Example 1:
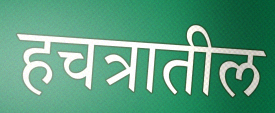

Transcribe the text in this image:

हचत्रातील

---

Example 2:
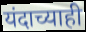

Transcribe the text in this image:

यंदाच्याही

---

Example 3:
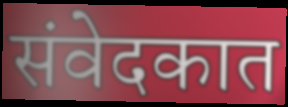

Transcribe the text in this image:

संवेदकात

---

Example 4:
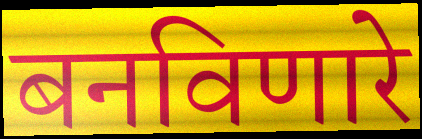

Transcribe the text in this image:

बनविणारे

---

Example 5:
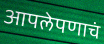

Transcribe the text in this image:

आपलेपणाचं